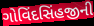
ગોવિંદસિંહજીની